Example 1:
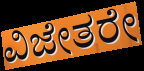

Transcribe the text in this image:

ವಿಜೇತರೇ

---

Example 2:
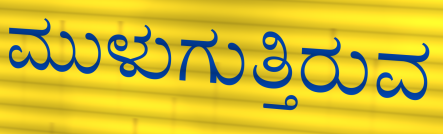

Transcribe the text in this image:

ಮುಳುಗುತ್ತಿರುವ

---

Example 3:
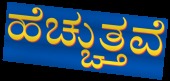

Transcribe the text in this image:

ಹೆಚ್ಚುತ್ತವೆ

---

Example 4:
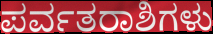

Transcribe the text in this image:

ಪರ್ವತರಾಶಿಗಳು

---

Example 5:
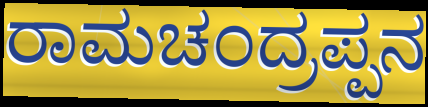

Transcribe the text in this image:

ರಾಮಚಂದ್ರಪ್ಪನ